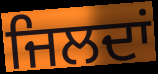
ਜਿਲਦਾਂ